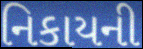
નિકાયની